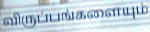
விருப்பங்களையும்